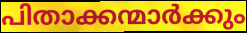
പിതാക്കന്മാർക്കും